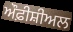
ਔਫ਼ੀਸ਼ੀਅਲ